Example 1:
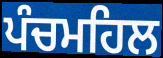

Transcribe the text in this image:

ਪੰਚਮਹਿਲ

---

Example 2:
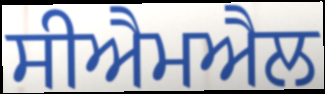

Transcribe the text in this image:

ਸੀਐਮਐਲ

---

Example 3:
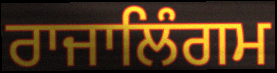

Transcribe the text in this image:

ਰਾਜਾਲਿੰਗਮ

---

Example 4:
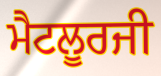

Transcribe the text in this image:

ਮੈਟਲੂਰਜੀ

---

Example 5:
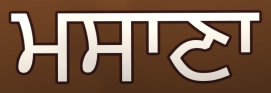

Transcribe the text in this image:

ਮਸਾਣਾ